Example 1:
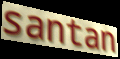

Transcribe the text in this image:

santan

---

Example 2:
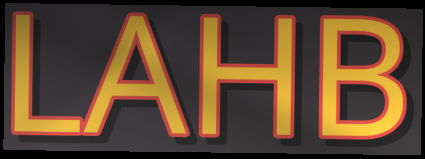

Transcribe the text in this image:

LAHB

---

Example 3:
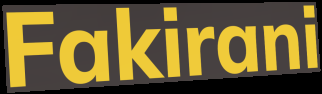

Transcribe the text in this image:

Fakirani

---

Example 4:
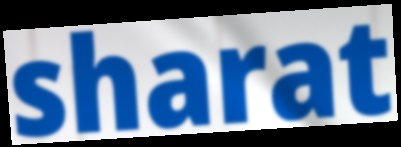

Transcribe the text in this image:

sharat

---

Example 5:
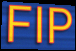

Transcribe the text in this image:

FIP